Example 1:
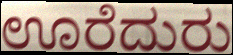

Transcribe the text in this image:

ಊರೆದುರು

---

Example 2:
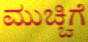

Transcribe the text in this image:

ಮುಚ್ಚಿಗೆ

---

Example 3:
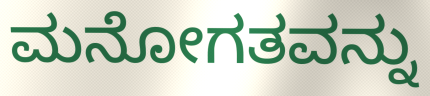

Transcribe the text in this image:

ಮನೋಗತವನ್ನು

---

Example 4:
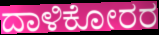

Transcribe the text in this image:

ದಾಳಿಕೋರರ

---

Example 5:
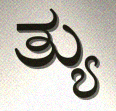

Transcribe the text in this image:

ತ್ಯು